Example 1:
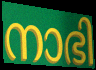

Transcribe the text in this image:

നാഭി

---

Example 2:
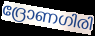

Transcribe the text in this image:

ദ്രോണഗിരി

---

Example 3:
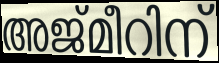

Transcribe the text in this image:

അജ്മീറിന്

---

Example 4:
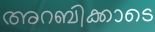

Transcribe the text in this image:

അറബിക്കാടെ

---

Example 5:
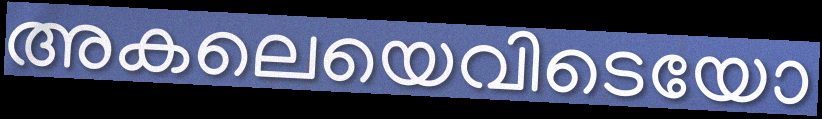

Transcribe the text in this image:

അകലെയെവിടെയോ